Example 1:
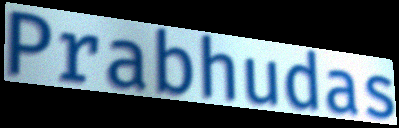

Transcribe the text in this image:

Prabhudas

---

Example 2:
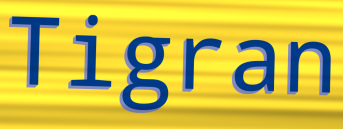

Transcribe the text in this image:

Tigran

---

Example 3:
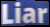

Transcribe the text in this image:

Liar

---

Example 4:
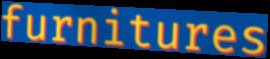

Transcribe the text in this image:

furnitures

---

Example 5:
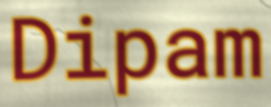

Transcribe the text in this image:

Dipam